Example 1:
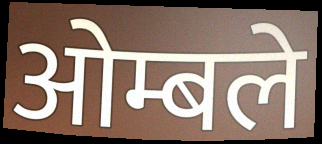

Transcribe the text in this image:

ओम्बले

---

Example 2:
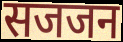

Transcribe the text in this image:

सजजन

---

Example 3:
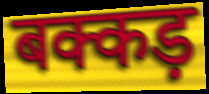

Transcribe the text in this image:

बक्कड़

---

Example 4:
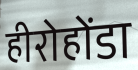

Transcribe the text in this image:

हीरोहोंडा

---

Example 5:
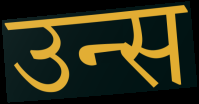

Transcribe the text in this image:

उन्स